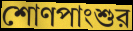
শোণপাংশুর